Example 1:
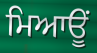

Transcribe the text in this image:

ਮਿਆਊਂ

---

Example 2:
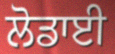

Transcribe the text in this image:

ਲੋਡਾਈ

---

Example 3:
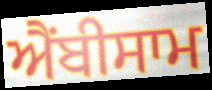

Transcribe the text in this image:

ਐਂਬੀਸਾਮ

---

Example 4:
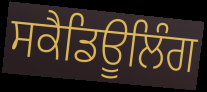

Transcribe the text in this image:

ਸਕੈਡਿਊਲਿੰਗ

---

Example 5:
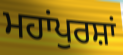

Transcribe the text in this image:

ਮਹਾਂਪੁਰਸ਼ਾਂ